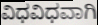
ವಿಧವಿಧವಾಗಿ